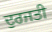
ਦੁਰਜਤੀ